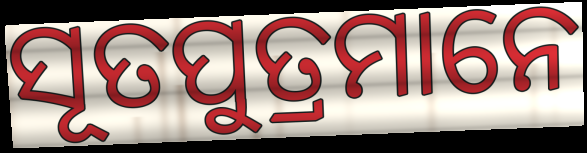
ସୂତପୁତ୍ରମାନେ